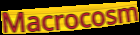
Macrocosm